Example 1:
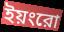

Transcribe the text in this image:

ইয়ংরো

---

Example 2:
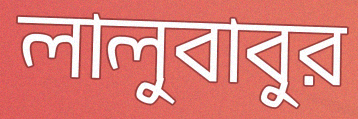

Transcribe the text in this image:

লালুবাবুর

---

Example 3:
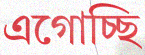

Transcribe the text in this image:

এগোচ্ছি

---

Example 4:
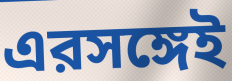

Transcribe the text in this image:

এরসঙ্গেই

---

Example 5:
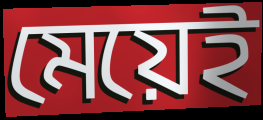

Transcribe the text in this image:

মেয়েই